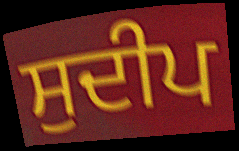
ਸੁਦੀਪ